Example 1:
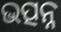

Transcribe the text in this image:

ଭତ୍ପନ୍ନ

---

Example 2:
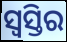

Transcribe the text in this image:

ସ୍ୱସ୍ତିର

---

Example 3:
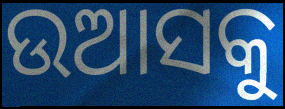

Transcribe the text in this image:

ଉଆସକୁ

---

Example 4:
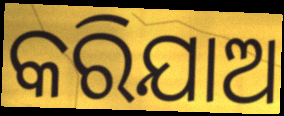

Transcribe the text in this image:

କରିଯାଅ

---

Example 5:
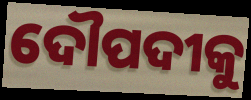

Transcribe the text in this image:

ଦୌପଦୀକୁ